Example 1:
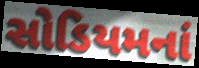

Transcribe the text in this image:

સોડિયમનાં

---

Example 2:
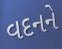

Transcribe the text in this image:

વદનને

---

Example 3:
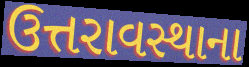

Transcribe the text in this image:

ઉત્તરાવસ્થાના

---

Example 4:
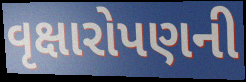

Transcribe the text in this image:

વૃક્ષારોપણની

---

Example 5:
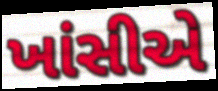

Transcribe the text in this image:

ખાંસીએ